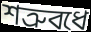
শত্রুবধে